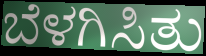
ಬೆಳಗಿಸಿತು